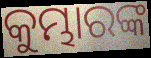
କୁମ୍ଭାରଙ୍କ